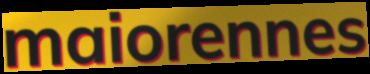
maiorennes